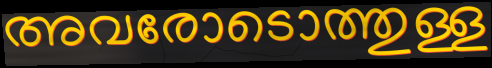
അവരോടൊത്തുള്ള